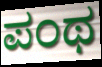
ಪಂಥ